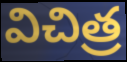
విచిత్ర